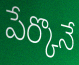
పేర్కొనే